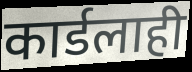
कार्डलाही